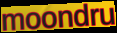
moondru